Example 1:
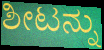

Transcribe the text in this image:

ಶೀಟನ್ನು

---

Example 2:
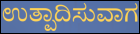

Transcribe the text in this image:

ಉತ್ಪಾದಿಸುವಾಗ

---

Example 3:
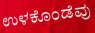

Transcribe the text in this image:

ಉಳಕೊಂಡೆವು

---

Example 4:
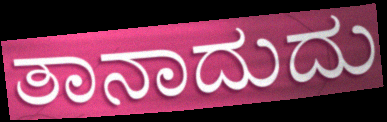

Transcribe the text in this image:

ತಾನಾದುದು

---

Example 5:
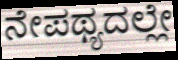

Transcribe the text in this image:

ನೇಪಥ್ಯದಲ್ಲೇ